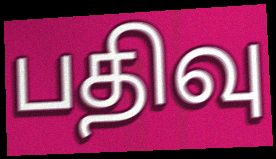
பதிவு